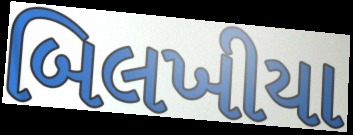
બિલખીયા